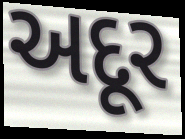
અદૂર